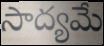
సాద్యమే